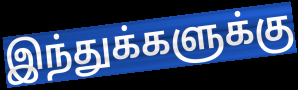
இந்துக்களுக்கு